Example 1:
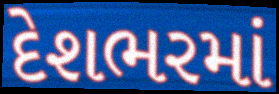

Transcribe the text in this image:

દેશભરમાં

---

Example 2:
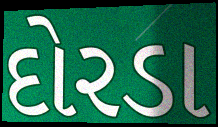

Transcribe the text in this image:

દોરડા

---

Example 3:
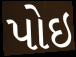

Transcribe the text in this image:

પોઇ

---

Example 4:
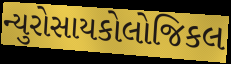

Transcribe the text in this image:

ન્યુરોસાયકોલોજિકલ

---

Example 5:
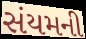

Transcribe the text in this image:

સંયમની